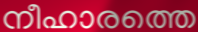
നീഹാരത്തെ